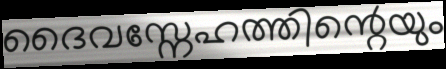
ദൈവസ്നേഹത്തിന്റെയും